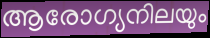
ആരോഗ്യനിലയും